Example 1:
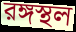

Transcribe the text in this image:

রঙ্গস্থল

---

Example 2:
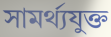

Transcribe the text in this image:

সামর্থ্যযুক্ত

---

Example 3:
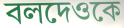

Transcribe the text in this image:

বলদেওকে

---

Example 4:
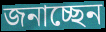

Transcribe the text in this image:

জনাচ্ছেন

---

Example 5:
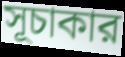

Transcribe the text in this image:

সূচাকার